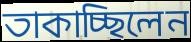
তাকাচ্ছিলেন